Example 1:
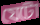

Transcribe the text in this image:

যেটো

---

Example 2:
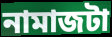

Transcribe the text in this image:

নামাজটা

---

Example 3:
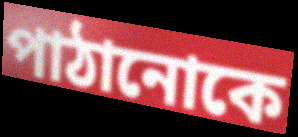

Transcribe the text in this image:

পাঠানোকে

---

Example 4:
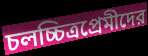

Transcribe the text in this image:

চলচ্চিত্রপ্রেমীদের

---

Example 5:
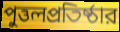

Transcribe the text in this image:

পুত্তলপ্রতিষ্ঠার